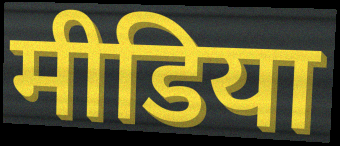
मीडिया